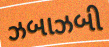
ઝબાઝબી